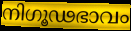
നിഗൂഢഭാവം